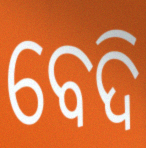
ବେଦି